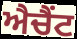
ਐਚੈਂਟ